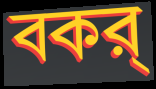
বকর্